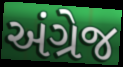
અંગ્રેજ